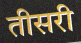
तीसरी